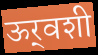
ऊर्वशी